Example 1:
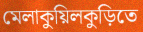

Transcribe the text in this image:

মেলাকুয়িলকুড়িতে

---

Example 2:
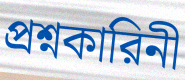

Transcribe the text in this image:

প্রশ্নকারিনী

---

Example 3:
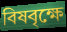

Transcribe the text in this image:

বিষবৃক্ষে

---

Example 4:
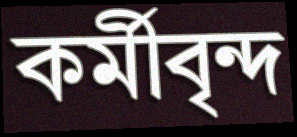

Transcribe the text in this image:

কর্মীবৃন্দ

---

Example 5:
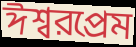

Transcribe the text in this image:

ঈশ্বরপ্রেম